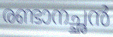
രണ്ടാനച്ഛൻ